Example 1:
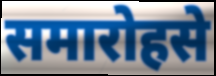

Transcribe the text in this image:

समारोहसे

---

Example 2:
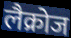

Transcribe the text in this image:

लैक्रोज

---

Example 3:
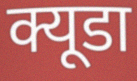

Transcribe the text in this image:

क्यूडा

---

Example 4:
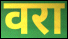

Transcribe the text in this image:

वरा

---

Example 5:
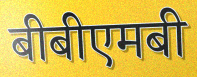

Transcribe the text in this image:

बीबीएमबी